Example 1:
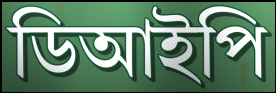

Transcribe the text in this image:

ডিআইপি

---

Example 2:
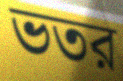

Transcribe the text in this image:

ভতর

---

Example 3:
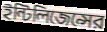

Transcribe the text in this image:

ইন্টিলিজেন্সের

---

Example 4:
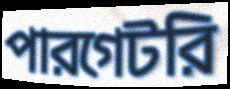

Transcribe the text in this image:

পারগেটরি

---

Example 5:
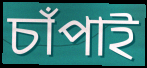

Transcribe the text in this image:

চাঁপাই